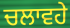
ਚਲਾਵਹੇ